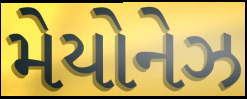
મેયોનેઝ